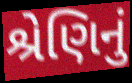
શ્રેણિનું